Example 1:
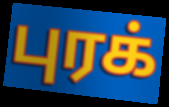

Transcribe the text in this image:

புரக்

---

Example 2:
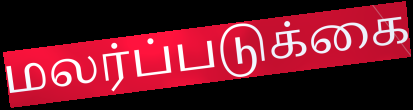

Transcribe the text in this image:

மலர்ப்படுக்கை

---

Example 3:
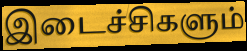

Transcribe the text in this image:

இடைச்சிகளும்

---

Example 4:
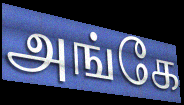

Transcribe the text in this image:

அங்கே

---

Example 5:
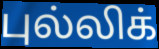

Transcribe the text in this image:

புல்லிக்